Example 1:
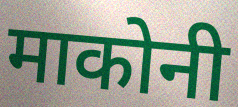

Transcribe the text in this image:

माकोनी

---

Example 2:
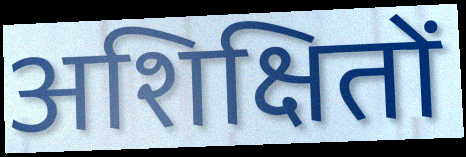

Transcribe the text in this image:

अशिक्षितों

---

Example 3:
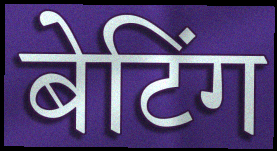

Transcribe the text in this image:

बेटिंग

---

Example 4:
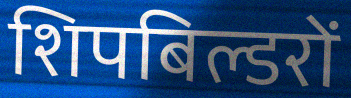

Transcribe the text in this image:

शिपबिल्डरों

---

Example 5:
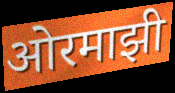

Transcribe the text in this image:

ओरमाझी